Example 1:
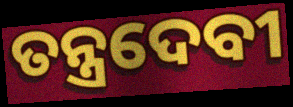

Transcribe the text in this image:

ତନ୍ତ୍ରଦେବୀ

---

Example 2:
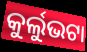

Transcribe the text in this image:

କୁର୍ଲୁଭଟା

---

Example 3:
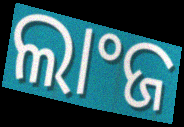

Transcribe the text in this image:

ଲାଂଜ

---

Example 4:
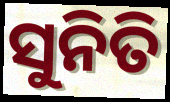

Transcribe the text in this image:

ସୁନିତି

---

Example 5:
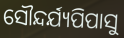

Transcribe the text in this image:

ସୌନ୍ଦର୍ଯ୍ୟପିପାସୁ